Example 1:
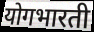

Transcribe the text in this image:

योगभारती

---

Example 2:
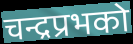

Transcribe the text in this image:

चन्द्रप्रभको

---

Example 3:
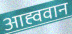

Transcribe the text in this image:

आह्ववान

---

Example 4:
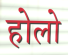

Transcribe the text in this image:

होलो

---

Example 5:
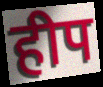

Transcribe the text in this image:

हीप